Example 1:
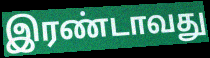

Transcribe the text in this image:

இரண்டாவது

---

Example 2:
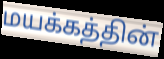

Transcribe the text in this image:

மயக்கத்தின்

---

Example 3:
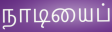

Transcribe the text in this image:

நாடியைப்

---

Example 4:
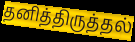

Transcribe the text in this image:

தனித்திருத்தல்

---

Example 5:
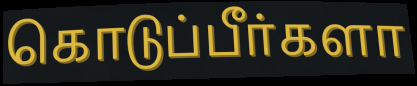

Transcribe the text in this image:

கொடுப்பீர்களா